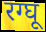
रग्घू